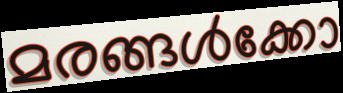
മരങ്ങൾക്കോ